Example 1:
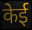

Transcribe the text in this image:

केई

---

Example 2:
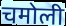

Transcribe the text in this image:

चमोली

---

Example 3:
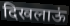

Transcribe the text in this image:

दिखलाऊं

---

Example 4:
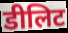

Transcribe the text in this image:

डीलिट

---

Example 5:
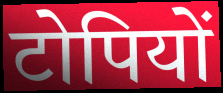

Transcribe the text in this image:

टोपियों